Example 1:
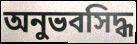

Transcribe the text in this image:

অনুভবসিদ্ধ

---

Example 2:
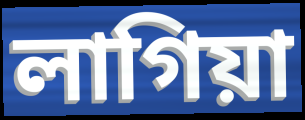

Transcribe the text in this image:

লাগিয়া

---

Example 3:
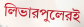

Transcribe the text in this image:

লিভারপুলেরই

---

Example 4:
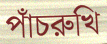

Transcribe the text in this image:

পাঁচরুখি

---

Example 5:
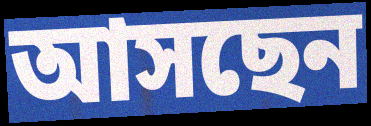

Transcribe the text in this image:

আসছেন